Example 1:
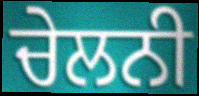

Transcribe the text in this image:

ਚੇਲਨੀ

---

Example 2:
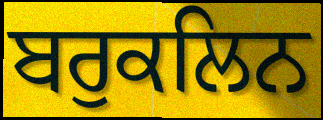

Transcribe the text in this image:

ਬਰੁਕਲਿਨ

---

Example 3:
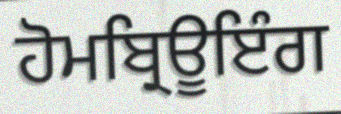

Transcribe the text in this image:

ਹੋਮਬ੍ਰਿਊਇੰਗ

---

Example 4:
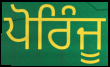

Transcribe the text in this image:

ਪੋਰਿੰਜੂ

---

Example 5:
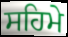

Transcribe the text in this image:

ਸਹਿਮੇ